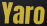
Yaro